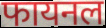
फायनल